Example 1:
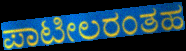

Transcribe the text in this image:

ಪಾಟೀಲರಂತಹ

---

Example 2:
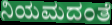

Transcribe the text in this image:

ನಿಯಮದಂತೆ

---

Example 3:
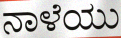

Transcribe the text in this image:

ನಾಳೆಯು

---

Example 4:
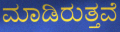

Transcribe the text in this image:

ಮಾಡಿರುತ್ತವೆ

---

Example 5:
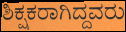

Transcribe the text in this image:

ಶಿಕ್ಷಕರಾಗಿದ್ದವರು